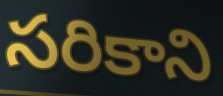
సరికాని